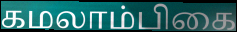
கமலாம்பிகை